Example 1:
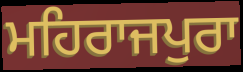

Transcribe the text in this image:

ਮਹਿਰਾਜਪੁਰਾ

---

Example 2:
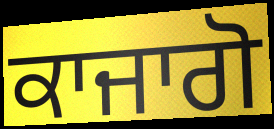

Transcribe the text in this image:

ਕਾਜਾਗੋ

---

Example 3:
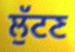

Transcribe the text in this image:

ਲੁੱਟਣ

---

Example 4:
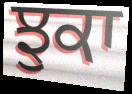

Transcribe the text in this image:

ਝੁਕਾ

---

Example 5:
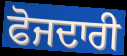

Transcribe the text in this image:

ਫੋਜਦਾਰੀ